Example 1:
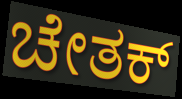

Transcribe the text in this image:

ಚೇತಕ್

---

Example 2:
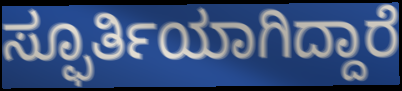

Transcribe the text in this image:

ಸ್ಫೂರ್ತಿಯಾಗಿದ್ದಾರೆ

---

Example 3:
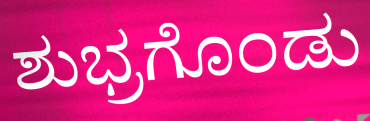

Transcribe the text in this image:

ಶುಭ್ರಗೊಂಡು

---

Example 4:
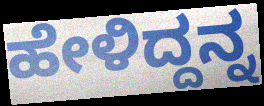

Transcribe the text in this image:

ಹೇಳಿದ್ದನ್ನ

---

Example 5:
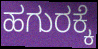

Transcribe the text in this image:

ಹಗುರಕ್ಕೆ